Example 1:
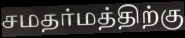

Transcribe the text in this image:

சமதர்மத்திற்கு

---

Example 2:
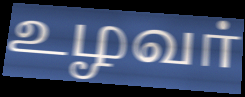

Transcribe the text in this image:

உழவர்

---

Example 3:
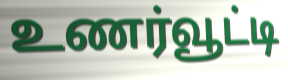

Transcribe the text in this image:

உணர்வூட்டி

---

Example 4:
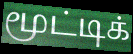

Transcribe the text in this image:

மூட்டிக்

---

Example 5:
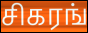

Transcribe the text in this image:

சிகரங்